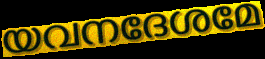
യവനദേശമേ